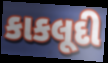
કાકલૂદી